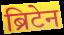
ब्रिटेन